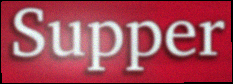
Supper